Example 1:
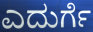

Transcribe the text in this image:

ಎದುರ್ಗೆ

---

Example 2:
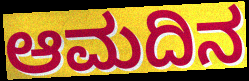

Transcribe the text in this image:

ಆಮದಿನ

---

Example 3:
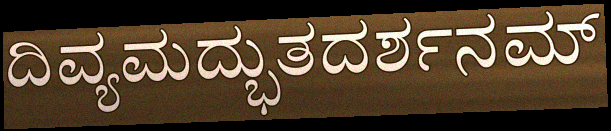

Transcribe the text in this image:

ದಿವ್ಯಮದ್ಭುತದರ್ಶನಮ್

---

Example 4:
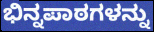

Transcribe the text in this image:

ಭಿನ್ನಪಾಠಗಳನ್ನು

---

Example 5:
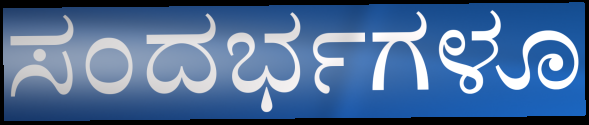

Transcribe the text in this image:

ಸಂದರ್ಭಗಳೂ